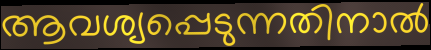
ആവശ്യപ്പെടുന്നതിനാൽ